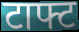
टाफ्ट